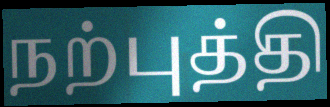
நற்புத்தி